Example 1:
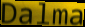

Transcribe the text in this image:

Dalma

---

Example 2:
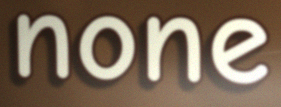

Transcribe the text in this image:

none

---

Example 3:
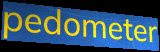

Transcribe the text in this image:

pedometer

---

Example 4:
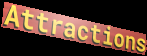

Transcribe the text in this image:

Attractions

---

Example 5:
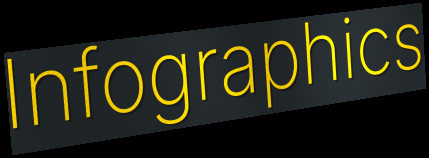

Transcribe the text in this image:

Infographics